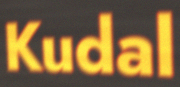
Kudal